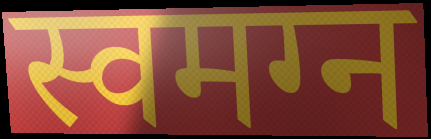
स्वमग्न